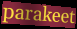
parakeet